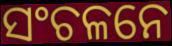
ସଂଚଳନେ